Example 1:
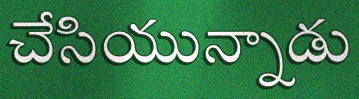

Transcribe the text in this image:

చేసియున్నాడు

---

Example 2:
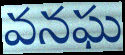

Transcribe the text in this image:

వనఘ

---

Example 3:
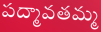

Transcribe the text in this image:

పద్మావతమ్మ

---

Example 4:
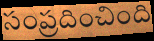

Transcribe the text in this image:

సంప్రదించింది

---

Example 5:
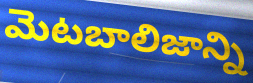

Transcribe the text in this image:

మెటబాలిజాన్ని